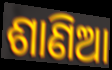
ଶାଣିଆ